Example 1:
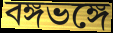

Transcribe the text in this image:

বঙ্গভঙ্গে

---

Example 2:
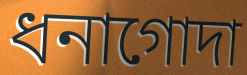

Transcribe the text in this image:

ধনাগোদা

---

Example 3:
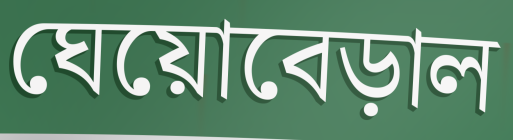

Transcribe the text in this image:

ঘেয়োবেড়াল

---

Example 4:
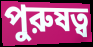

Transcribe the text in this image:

পুরুষত্ব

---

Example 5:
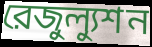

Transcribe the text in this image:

রেজুল্যুশন